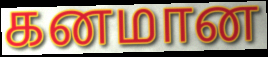
கனமான